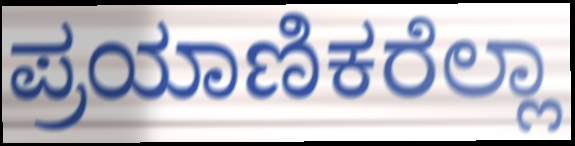
ಪ್ರಯಾಣಿಕರೆಲ್ಲಾ